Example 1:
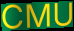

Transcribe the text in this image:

CMU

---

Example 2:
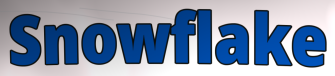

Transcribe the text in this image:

Snowflake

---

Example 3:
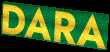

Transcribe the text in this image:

DARA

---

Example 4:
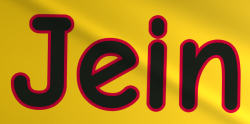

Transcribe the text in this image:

Jein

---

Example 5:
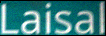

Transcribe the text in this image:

Laisal